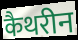
कैथरीन